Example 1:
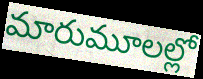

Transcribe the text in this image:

మారుమూలల్లో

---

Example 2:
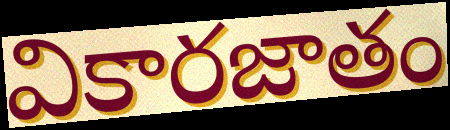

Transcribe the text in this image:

వికారజాతం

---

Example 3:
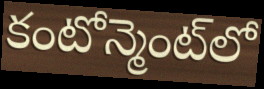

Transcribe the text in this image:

కంటోన్మెంట్‌లో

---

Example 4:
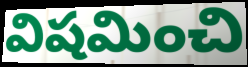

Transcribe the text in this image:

విషమించి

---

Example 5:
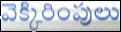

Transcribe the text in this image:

వెక్కిరింపులు